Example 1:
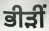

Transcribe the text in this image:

ਭੀੜੀਂ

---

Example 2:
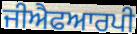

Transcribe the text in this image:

ਜੀਐਫਆਰਪੀ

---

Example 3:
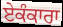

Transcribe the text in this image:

ਏਕੰਕਾਰਾ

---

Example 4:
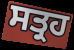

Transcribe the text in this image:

ਸਤ੍ਰਹ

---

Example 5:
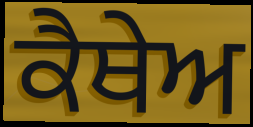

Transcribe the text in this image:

ਕੈਥੇਅ